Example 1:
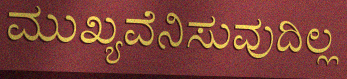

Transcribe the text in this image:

ಮುಖ್ಯವೆನಿಸುವುದಿಲ್ಲ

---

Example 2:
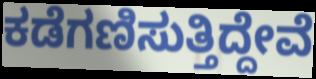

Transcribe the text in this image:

ಕಡೆಗಣಿಸುತ್ತಿದ್ದೇವೆ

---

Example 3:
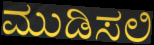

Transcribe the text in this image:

ಮುಡಿಸಲಿ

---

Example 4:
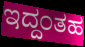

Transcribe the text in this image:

ಇದ್ದಂತಹ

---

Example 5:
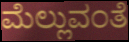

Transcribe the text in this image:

ಮೆಲ್ಲುವಂತೆ